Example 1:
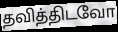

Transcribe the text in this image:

தவித்திடவோ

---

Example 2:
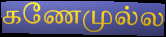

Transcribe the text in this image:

கணேமுல்ல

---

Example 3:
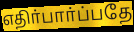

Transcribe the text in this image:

எதிர்பார்ப்பதே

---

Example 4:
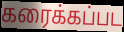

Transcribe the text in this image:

கரைக்கப்பட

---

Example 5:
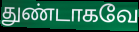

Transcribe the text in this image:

துண்டாகவே